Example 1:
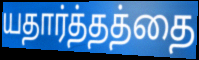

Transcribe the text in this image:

யதார்த்தத்தை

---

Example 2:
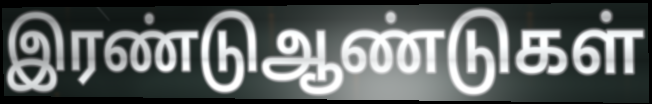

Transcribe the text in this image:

இரண்டுஆண்டுகள்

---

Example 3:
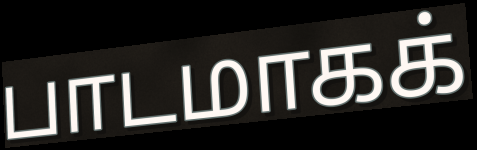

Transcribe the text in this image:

பாடமாகக்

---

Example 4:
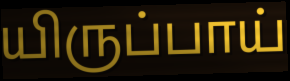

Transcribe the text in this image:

யிருப்பாய்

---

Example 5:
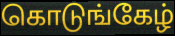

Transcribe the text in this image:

கொடுங்கேழ்